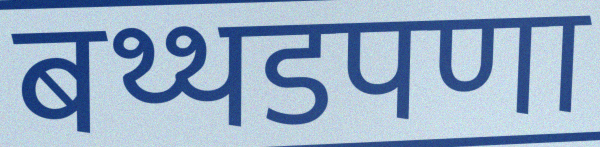
बथ्थडपणा